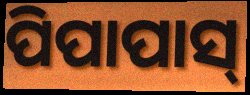
ପିପାପାସ୍